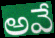
అవే